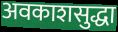
अवकाशसुद्धा